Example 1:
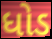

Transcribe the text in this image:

ધોડ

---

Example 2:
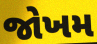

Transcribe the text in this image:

જોખમ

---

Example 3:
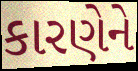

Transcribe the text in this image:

કારણેને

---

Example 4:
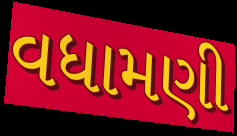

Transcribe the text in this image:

વધામણી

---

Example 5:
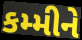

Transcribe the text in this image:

કમ્મીને